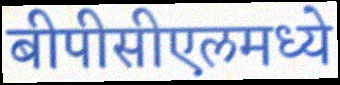
बीपीसीएलमध्ये